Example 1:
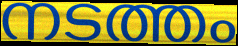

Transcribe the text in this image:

നടത്തം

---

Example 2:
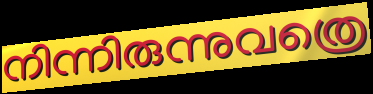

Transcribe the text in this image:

നിന്നിരുന്നുവത്രെ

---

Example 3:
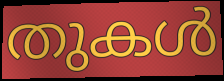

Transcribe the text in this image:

തുകൾ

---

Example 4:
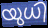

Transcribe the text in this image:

യുധി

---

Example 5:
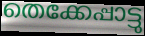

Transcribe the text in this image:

തെക്കേപ്പാട്ടു